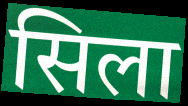
सिला